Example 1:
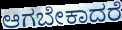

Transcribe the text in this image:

ಆಗಬೇಕಾದರೆ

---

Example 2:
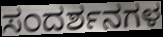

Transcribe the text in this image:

ಸಂದರ್ಶನಗಳ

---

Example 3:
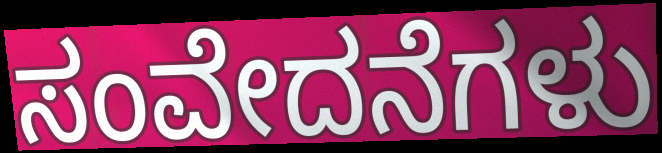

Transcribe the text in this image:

ಸಂವೇದನೆಗಳು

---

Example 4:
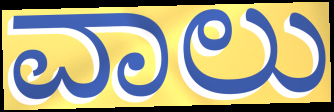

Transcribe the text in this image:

ವಾಲು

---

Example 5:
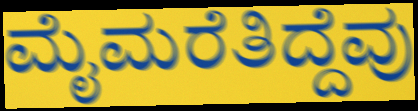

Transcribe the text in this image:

ಮೈಮರೆತಿದ್ದೆವು